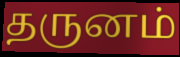
தருனம்